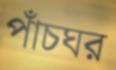
পাঁচঘর